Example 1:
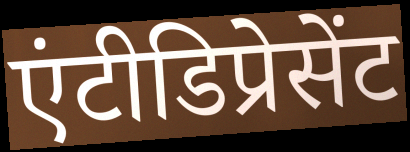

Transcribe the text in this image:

एंटीडिप्रेसेंट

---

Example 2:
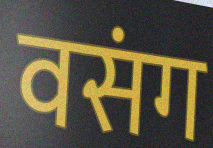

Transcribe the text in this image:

वसंग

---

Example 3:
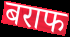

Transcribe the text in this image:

बराफ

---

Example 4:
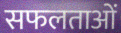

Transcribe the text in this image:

सफलताओं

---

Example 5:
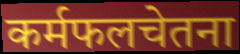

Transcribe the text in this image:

कर्मफलचेतना